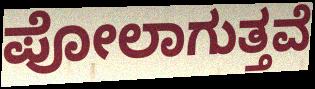
ಪೋಲಾಗುತ್ತವೆ